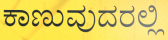
ಕಾಣುವುದರಲ್ಲಿ